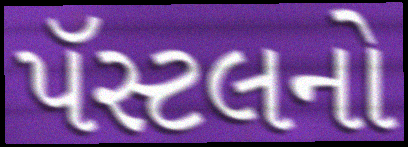
પૅસ્ટલનો